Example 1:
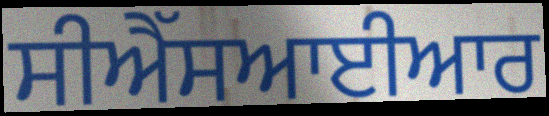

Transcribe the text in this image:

ਸੀਐੱਸਆਈਆਰ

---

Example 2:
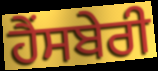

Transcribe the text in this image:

ਹੈਂਸਬੇਰੀ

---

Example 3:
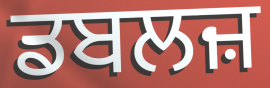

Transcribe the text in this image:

ਡਬਲਜ਼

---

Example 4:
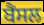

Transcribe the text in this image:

ਬੈਂਸਲ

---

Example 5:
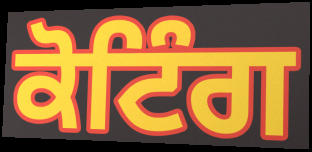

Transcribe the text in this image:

ਕੋਟਿੰਗ